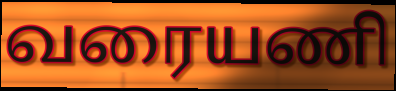
வரையணி